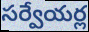
సర్వేయర్ల